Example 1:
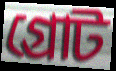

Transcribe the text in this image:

গ্রোট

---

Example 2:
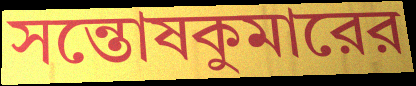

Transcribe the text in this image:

সন্তোষকুমারের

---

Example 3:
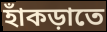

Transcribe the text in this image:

হাঁকড়াতে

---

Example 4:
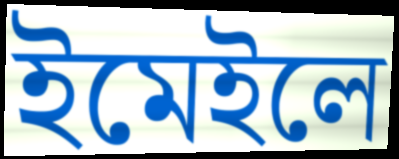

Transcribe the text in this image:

ইমেইলে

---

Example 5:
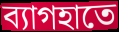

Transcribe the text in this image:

ব্যাগহাতে